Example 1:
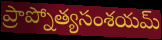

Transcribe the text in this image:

ప్రాప్నోత్యసంశయమ్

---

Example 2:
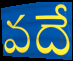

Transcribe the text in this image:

వదే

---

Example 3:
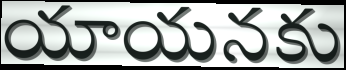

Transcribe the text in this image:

యాయనకు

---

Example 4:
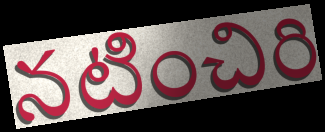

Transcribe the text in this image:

నటించిరి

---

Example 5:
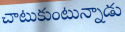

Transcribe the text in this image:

చాటుకుంటున్నాడు